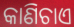
କାଣିଚାଏ